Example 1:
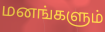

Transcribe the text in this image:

மனங்களும்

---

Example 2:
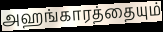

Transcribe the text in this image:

அஹங்காரத்தையும்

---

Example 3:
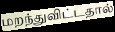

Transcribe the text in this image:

மறந்துவிட்டதால்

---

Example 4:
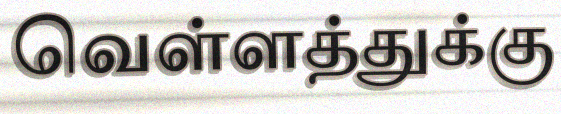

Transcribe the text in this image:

வெள்ளத்துக்கு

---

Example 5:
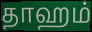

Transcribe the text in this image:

தாஹம்